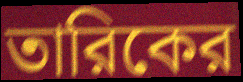
তারিকের